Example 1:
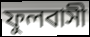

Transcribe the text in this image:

ফুলবাসী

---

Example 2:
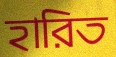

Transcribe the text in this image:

হারিত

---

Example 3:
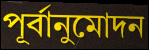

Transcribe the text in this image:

পূর্বানুমোদন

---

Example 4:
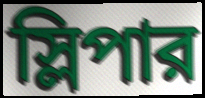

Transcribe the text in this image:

স্লিপার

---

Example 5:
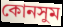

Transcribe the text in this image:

কোনসুম